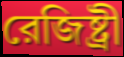
রেজিষ্ট্রী